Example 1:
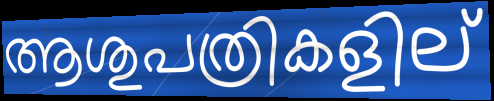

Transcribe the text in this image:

ആശുപത്രികളില്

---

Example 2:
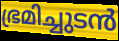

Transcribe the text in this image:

ഭ്രമിച്ചുടൻ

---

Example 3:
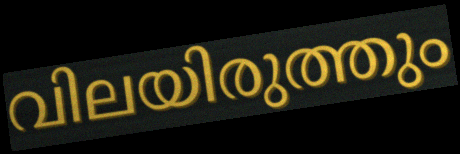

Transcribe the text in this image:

വിലയിരുത്തും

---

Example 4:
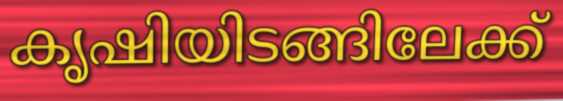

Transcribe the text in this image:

കൃഷിയിടങ്ങിലേക്ക്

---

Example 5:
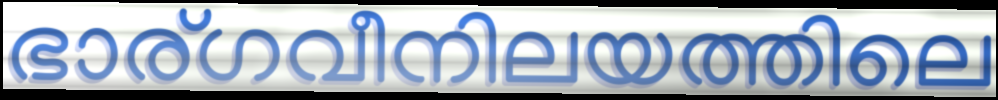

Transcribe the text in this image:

ഭാര്ഗവീനിലയത്തിലെ